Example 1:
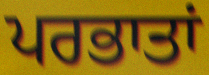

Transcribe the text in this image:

ਪਰਭਾਤਾਂ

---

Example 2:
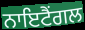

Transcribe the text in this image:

ਨਾਇਟੈਂਗਲ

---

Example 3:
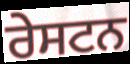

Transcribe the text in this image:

ਰੇਸਟਨ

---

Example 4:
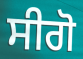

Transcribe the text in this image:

ਸੀਗੋ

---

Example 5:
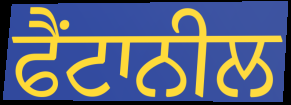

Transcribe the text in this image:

ਫੈਂਟਾਨੀਲ